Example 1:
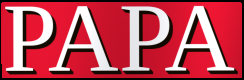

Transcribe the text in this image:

PAPA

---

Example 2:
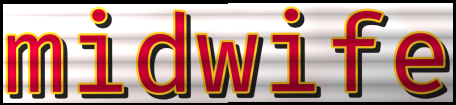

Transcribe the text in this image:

midwife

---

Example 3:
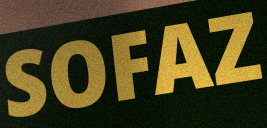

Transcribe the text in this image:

SOFAZ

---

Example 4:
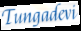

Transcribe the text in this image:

Tungadevi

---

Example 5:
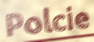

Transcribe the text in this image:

Polcie